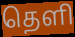
தெளி